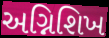
અગ્નિશિખ